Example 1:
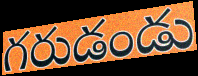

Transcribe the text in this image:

గరుడండు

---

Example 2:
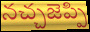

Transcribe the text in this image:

నచ్చజెప్పి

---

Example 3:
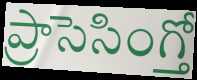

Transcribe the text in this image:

ప్రాసెసింగ్తో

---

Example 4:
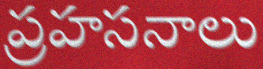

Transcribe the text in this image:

ప్రహసనాలు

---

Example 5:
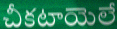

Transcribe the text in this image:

చీకటాయెలే